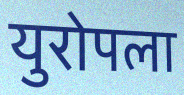
युरोपला